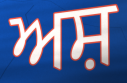
ਅਸ਼